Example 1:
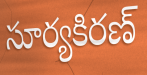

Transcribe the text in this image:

సూర్యకిరణ్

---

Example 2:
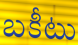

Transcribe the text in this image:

బకీటు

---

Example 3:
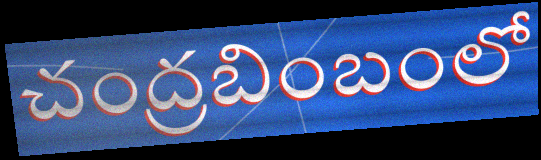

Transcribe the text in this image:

చంద్రబింబంలో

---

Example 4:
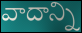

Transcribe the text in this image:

వాదాన్ని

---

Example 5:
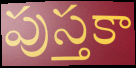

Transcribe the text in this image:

పుస్తకా